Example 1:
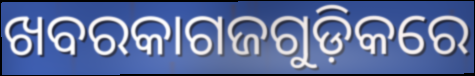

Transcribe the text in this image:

ଖବରକାଗଜଗୁଡ଼ିକରେ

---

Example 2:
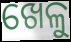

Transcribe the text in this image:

ଖେଳୁ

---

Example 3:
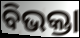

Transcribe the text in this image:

ବିଭକ୍ତା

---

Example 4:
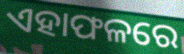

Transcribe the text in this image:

ଏହାଫଳରେ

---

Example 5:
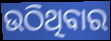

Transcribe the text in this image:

ଉଠିଥିବାର